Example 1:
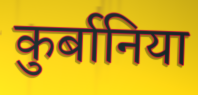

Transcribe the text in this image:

कुर्बानिया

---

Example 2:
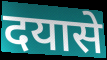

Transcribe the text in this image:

दयासे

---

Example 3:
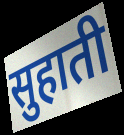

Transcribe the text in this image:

सुहाती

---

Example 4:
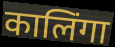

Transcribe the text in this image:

कालिंगा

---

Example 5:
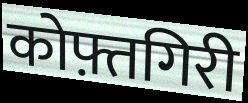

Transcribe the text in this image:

कोफ़्तगिरी